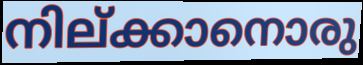
നില്ക്കാനൊരു